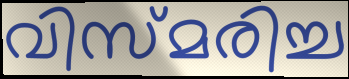
വിസ്മരിച്ച